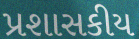
પ્રશાસકીય